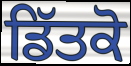
ਡਿੱਤਕੋ